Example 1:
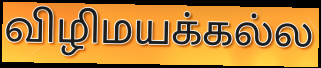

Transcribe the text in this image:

விழிமயக்கல்ல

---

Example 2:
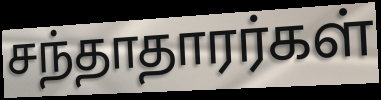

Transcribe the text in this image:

சந்தாதாரர்கள்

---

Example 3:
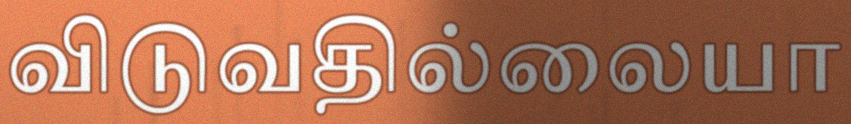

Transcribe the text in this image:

விடுவதில்லையா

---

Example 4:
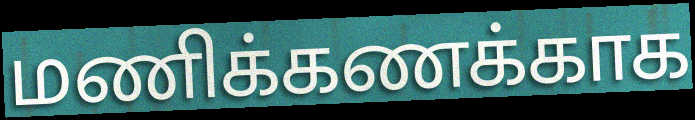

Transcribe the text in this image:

மணிக்கணக்காக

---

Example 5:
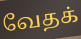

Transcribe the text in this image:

வேதக்